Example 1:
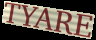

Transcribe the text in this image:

TYARE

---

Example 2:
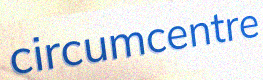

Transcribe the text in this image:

circumcentre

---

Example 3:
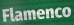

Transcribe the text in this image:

Flamenco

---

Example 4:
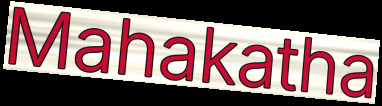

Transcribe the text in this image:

Mahakatha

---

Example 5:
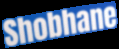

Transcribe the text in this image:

Shobhane